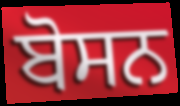
ਬੋਸਨ